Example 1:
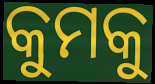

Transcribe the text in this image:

କୁମକୁ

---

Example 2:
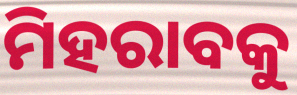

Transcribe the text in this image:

ମିହରାବକୁ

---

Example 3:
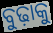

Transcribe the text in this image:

ବୁଢ଼ାକୁ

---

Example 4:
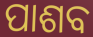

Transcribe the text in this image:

ପାଶବ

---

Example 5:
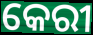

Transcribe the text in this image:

କେରୀ